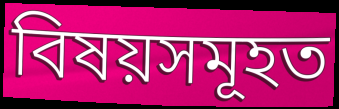
বিষয়সমূহত